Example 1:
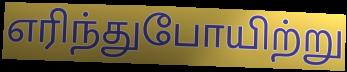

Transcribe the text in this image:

எரிந்துபோயிற்று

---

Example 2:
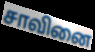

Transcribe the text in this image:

சாவினை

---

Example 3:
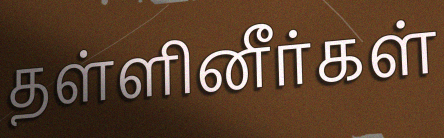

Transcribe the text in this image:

தள்ளினீர்கள்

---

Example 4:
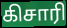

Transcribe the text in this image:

கிசாரி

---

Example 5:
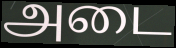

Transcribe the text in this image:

அடை